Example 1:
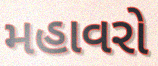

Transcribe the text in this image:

મહાવરો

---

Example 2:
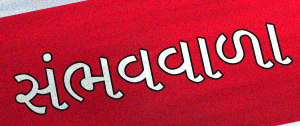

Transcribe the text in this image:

સંભવવાળા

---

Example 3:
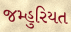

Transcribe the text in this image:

જમ્હુરિયત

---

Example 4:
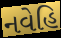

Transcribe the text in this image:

નવેહિ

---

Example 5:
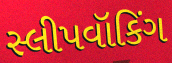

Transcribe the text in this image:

સ્લીપવૉકિંગ